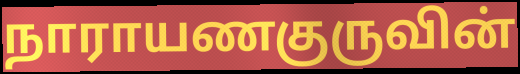
நாராயணகுருவின்